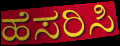
ಹೆಸರಿಸಿ